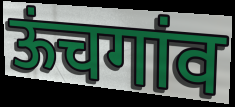
ऊंचगांव